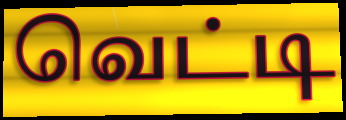
வெட்டி